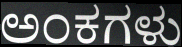
ಅಂಕಗಳು